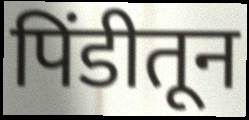
पिंडीतून